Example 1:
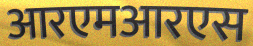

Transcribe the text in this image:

आरएमआरएस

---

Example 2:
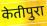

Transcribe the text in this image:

केतीपुरा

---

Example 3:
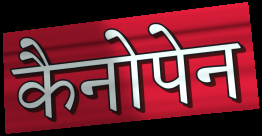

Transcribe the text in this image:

कैनोपेन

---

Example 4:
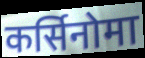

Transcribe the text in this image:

कर्सिनोमा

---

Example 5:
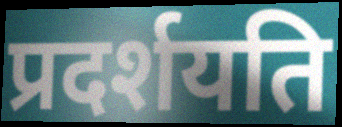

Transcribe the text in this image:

प्रदर्शयति